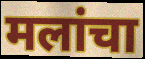
मलांचा